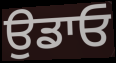
ਉਡਾਓ